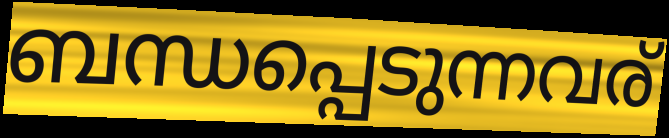
ബന്ധപ്പെടുന്നവര്